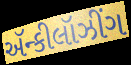
ઍન્કીલૉઝીંગ